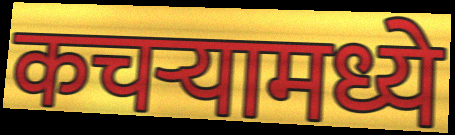
कचऱ्यामध्ये